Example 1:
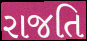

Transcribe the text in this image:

રાજતિ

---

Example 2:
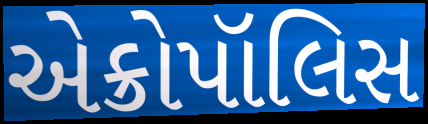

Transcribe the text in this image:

એક્રોપૉલિસ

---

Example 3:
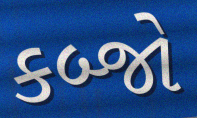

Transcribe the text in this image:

કબ્જો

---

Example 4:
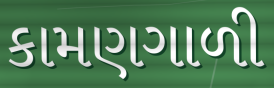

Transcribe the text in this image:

કામણગાળી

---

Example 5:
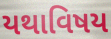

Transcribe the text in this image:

યથાવિષય